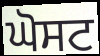
ਘੋਸਟ